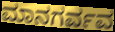
ಮಾನಗರ್ವವ